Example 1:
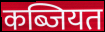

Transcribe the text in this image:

कब्जियत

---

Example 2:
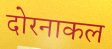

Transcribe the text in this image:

दोरनाकल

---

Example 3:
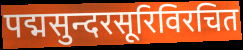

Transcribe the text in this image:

पद्मसुन्दरसूरिविरचित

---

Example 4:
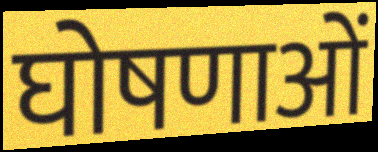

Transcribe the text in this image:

घोषणाओं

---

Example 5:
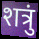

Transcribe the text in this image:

शत्रुं